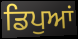
ਡਿਪੁਆਂ